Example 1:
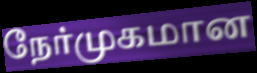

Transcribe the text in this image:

நேர்முகமான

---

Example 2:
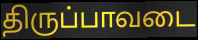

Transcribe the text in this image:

திருப்பாவடை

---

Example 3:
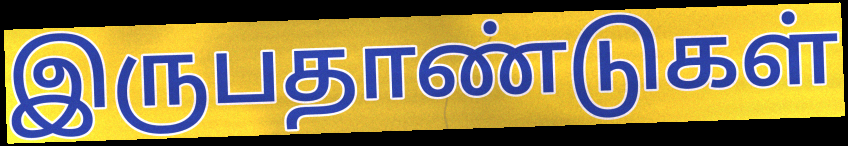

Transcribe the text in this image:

இருபதாண்டுகள்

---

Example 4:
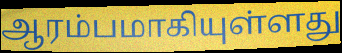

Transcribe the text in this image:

ஆரம்பமாகியுள்ளது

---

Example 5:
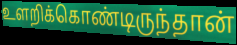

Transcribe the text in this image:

உளறிக்கொண்டிருந்தான்